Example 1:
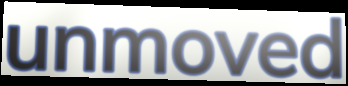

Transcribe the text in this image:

unmoved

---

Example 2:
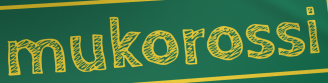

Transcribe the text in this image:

mukorossi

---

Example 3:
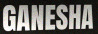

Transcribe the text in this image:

GANESHA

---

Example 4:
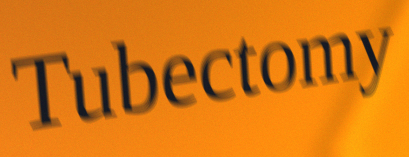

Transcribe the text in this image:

Tubectomy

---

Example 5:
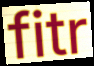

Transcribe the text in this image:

fitr